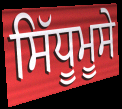
ਸਿੱਧੂਮੂਸੇ